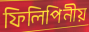
ফিলিপিনীয়